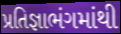
પ્રતિજ્ઞાભંગમાંથી